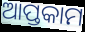
ଆପ୍ତକାମ